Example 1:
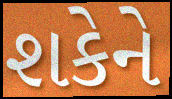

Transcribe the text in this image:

શકેને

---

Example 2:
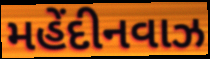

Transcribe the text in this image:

મહેંદીનવાઝ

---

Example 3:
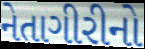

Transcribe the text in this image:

નેતાગીરીનો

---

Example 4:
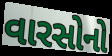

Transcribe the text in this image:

વારસોનો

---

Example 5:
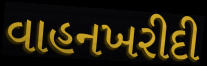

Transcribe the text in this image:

વાહનખરીદી